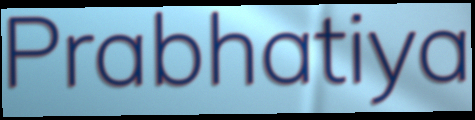
Prabhatiya